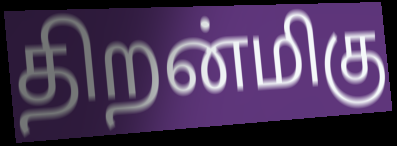
திறன்மிகு